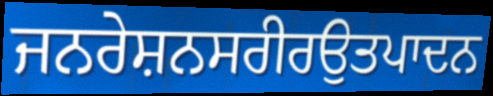
ਜਨਰੇਸ਼ਨਸਰੀਰਉਤਪਾਦਨ